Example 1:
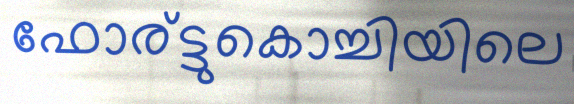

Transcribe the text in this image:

ഫോര്ട്ടുകൊച്ചിയിലെ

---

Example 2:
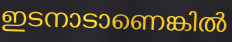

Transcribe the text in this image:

ഇടനാടാണെങ്കിൽ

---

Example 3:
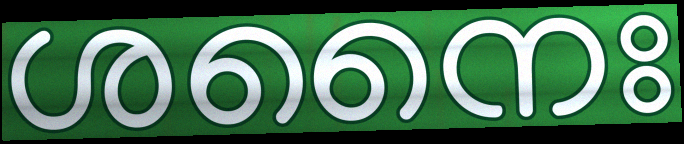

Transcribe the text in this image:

ശനൈഃ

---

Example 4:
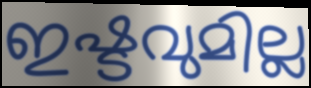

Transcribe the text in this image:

ഇഷ്ടവുമില്ല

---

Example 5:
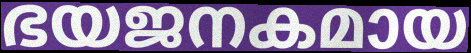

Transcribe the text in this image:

ഭയജനകമായ